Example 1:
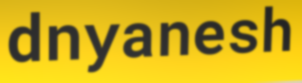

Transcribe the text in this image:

dnyanesh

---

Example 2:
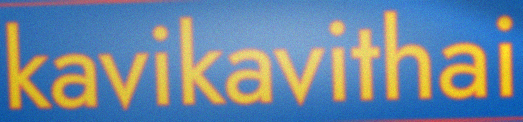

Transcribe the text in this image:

kavikavithai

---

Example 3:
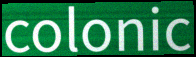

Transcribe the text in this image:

colonic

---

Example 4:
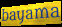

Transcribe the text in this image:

bayama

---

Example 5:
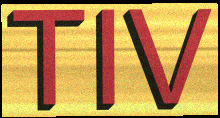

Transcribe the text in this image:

TIV